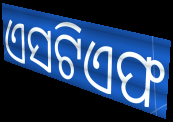
ଏସଟିଏଫ